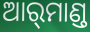
ଆର୍‌ମାଣ୍ଡ